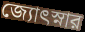
জ্যোৎস্নার